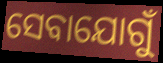
ସେବାଯୋଗୁଁ